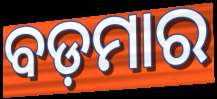
ବଡ଼ମାର